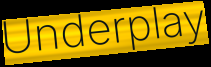
Underplay